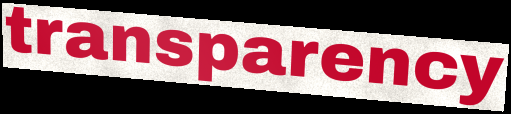
transparency